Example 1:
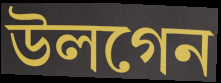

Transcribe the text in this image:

উলগেন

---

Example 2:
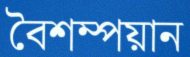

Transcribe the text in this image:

বৈশম্পয়ান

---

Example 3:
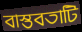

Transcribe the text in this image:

বাস্তবতাটি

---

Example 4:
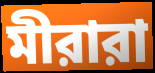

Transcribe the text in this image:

মীরারা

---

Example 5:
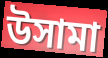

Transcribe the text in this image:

উসামা